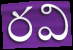
రవి